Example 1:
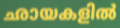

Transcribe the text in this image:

ഛായകളിൽ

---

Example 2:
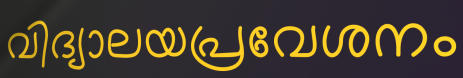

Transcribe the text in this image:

വിദ്യാലയപ്രവേശനം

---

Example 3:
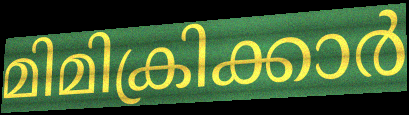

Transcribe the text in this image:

മിമിക്രിക്കാർ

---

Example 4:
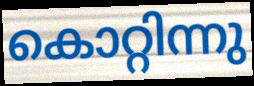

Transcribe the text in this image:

കൊറ്റിന്നു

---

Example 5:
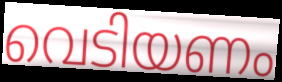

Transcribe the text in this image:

വെടിയണം